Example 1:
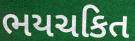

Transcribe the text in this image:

ભયચકિત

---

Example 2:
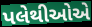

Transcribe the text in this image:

પલેથીઓએ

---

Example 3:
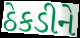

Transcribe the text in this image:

ઠેકડીને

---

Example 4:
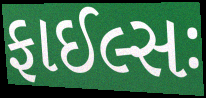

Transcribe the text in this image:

ફાઈલ્સઃ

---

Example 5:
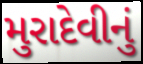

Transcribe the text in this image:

મુરાદેવીનું